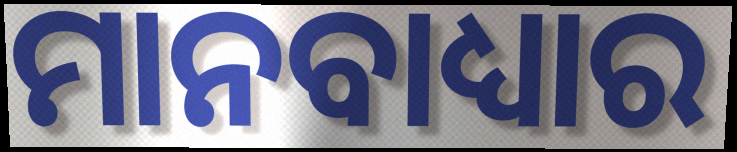
ମାନବାଧ୍ୟାର